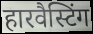
हारवैस्टिंग